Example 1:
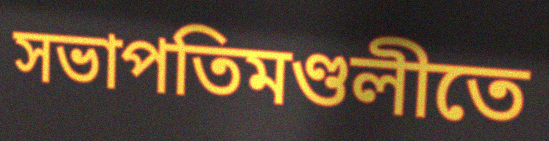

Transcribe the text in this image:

সভাপতিমণ্ডলীতে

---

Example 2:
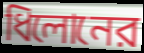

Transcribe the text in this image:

ধিলোনের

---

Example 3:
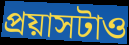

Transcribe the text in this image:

প্রয়াসটাও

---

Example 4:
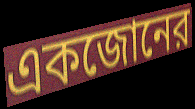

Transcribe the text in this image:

একজোনের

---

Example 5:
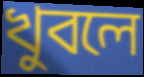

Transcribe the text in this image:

খুবলে